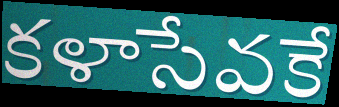
కళాసేవకే